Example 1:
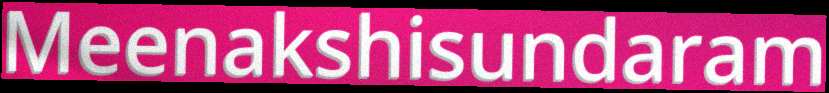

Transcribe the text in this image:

Meenakshisundaram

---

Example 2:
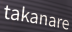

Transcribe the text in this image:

takanare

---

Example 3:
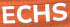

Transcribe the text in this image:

ECHS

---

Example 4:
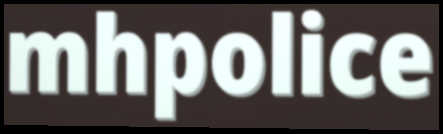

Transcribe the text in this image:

mhpolice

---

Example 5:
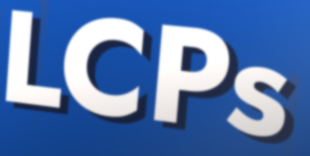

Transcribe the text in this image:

LCPs